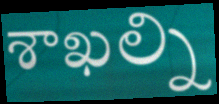
శాఖల్ని